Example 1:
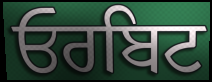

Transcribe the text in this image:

ਓਰਬਿਟ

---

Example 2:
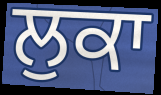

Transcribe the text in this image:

ਲੁਕਾ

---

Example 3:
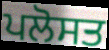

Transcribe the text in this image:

ਪਲੋਸਤ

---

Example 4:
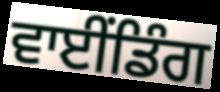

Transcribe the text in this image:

ਵਾਈਂਡਿੰਗ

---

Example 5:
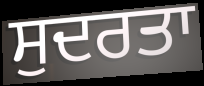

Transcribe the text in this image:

ਸੁਦਰਤਾ